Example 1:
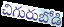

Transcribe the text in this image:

చిగురుబోడి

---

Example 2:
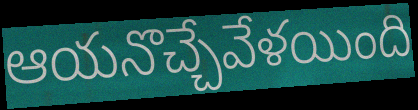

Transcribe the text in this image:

ఆయనొచ్చేవేళయింది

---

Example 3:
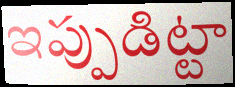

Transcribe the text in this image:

ఇప్పుడిట్టా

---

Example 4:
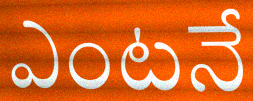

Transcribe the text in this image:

ఎంటనే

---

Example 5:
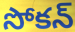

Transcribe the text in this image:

సోకన్